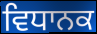
ਵਿਧਾਨਕ